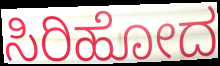
ಸಿರಿಹೋದ